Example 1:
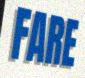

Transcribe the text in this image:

FARE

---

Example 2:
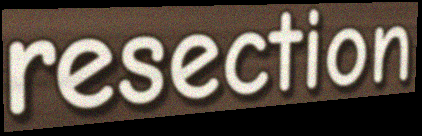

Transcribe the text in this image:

resection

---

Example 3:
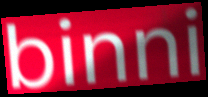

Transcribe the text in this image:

binni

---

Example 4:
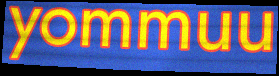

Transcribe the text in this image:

yommuu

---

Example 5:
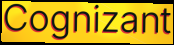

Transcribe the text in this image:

Cognizant